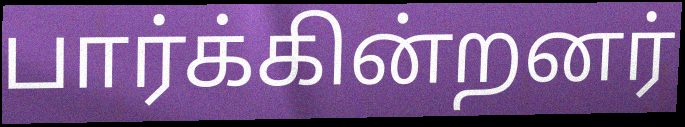
பார்க்கின்றனர்